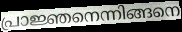
പ്രാജ്ഞനെന്നിങ്ങനെ